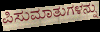
ಪಿಸುಮಾತುಗಳನ್ನು